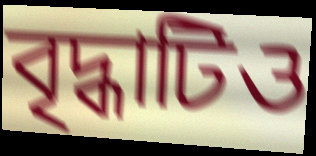
বৃদ্ধাটিও